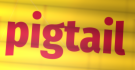
pigtail